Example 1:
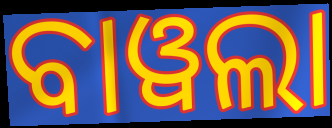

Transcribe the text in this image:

ବାୱଲା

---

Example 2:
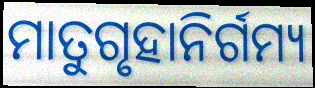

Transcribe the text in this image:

ମାତୁଗୃହାନିର୍ଗମ୍ୟ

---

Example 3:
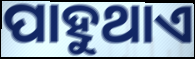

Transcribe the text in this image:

ପାହୁଥାଏ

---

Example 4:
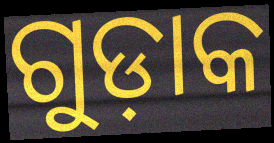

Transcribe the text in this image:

ଗୁଡ଼ାକ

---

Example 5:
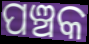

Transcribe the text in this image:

ପଞ୍ଚକ